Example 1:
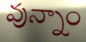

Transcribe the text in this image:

వున్నాం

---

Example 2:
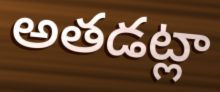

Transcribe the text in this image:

అతడట్లా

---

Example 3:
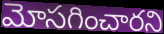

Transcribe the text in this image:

మోసగించారని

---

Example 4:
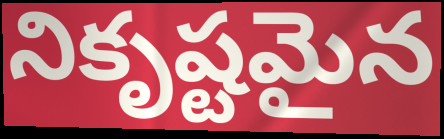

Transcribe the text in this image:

నికృష్టమైన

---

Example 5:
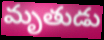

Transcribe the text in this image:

మృతుడు